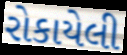
રોકાયેલી